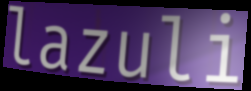
lazuli